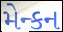
મેન્કન